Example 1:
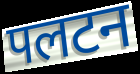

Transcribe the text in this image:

पलटन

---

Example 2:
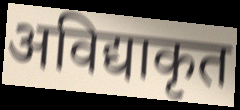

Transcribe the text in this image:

अविद्याकृत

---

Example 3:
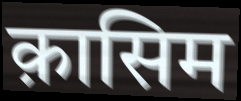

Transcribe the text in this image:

क़ासिम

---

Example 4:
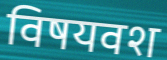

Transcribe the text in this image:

विषयवश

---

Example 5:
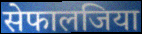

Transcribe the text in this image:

सेफालजिया